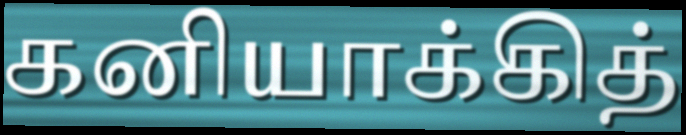
கனியாக்கித்